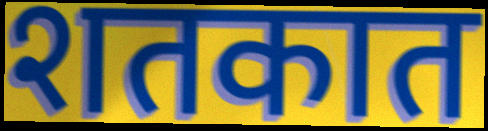
शतकात